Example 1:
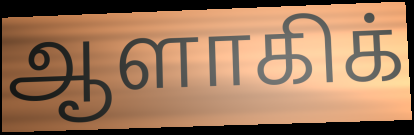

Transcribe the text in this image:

ஆளாகிக்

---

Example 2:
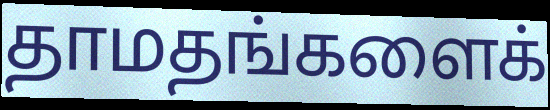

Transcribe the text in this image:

தாமதங்களைக்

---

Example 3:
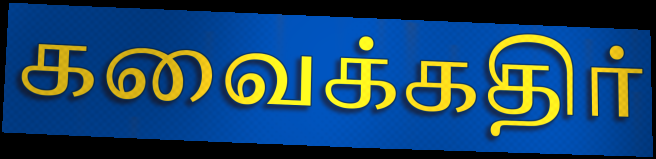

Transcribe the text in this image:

கவைக்கதிர்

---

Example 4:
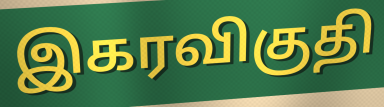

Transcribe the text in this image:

இகரவிகுதி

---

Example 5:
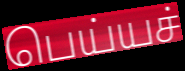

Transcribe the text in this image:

பெய்யச்